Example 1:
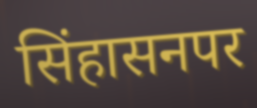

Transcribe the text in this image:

सिंहासनपर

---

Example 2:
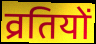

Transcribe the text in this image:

व्रतियों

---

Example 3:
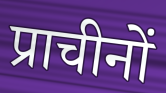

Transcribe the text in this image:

प्राचीनों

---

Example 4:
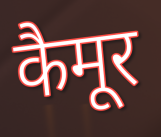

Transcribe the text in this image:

कैमूर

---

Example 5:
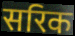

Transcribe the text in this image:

सरिक